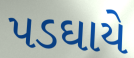
પડઘાયે